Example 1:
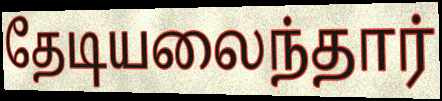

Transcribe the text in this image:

தேடியலைந்தார்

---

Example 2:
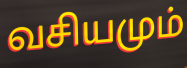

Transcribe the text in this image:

வசியமும்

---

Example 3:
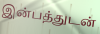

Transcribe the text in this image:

இன்பத்துடன்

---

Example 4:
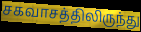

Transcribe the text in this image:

சகவாசத்திலிருந்து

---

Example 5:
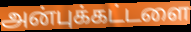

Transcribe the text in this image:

அன்புக்கட்டளை